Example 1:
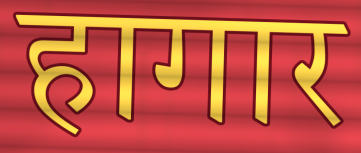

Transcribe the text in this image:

हागार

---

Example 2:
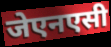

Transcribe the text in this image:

जेएनएसी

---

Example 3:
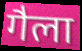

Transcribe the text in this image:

गैला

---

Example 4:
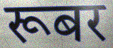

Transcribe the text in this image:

रूबर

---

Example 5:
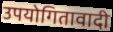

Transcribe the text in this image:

उपयोगितावादी